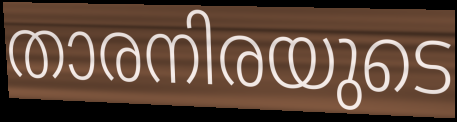
താരനിരയുടെ